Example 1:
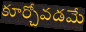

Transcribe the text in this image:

కూర్చోవడమే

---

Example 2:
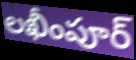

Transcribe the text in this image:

లఖీంపూర్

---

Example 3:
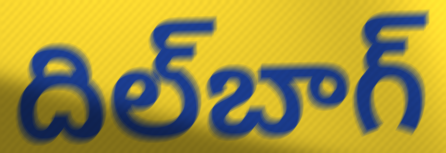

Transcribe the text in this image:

దిల్‌బాగ్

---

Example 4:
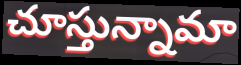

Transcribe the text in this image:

చూస్తున్నామా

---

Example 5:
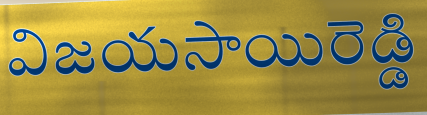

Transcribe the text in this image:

విజయసాయిరెడ్డి